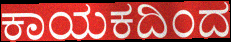
ಕಾಯಕದಿಂದ